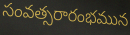
సంవత్సరారంభమున